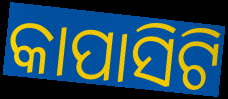
କାପାସିଟି